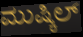
ಮುಷ್ಕಿಲ್